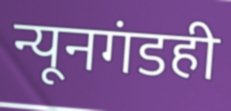
न्यूनगंडही